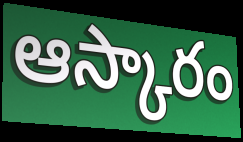
ఆస్కారం